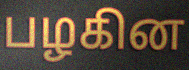
பழகின